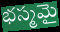
భస్మమై